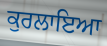
ਕੁਰਲਾਇਆ